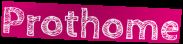
Prothome